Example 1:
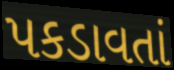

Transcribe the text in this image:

પકડાવતાં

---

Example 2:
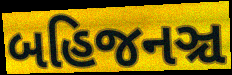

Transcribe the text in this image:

બહિજનઞ્ચ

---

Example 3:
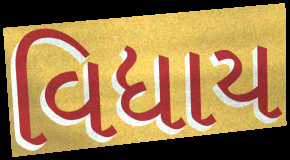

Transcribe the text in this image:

વિદ્યાય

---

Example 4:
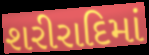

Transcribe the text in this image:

શરીરાદિમાં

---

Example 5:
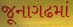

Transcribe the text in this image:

જૂનાગઢમાં